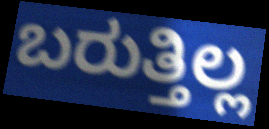
ಬರುತ್ತಿಲ್ಲ